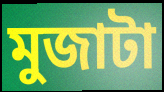
মুজাটা